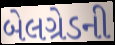
બેલગ્રેડની